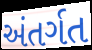
અંતર્ગત